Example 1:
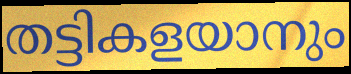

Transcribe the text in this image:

തട്ടികളയാനും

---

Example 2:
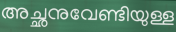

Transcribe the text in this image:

അച്ഛനുവേണ്ടിയുള്ള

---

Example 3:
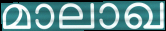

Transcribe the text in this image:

മാലാഖ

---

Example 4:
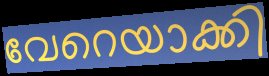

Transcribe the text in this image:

വേറെയാക്കി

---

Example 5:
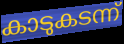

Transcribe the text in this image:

കാടുകടന്ന്